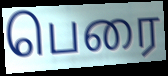
பெரை